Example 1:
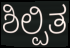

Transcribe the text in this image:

ಶಿಲ್ಪಿತ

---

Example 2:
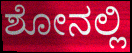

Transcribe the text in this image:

ಶೋನಲ್ಲಿ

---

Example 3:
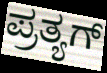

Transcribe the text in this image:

ಪ್ರತ್ಯಗ್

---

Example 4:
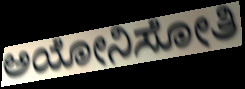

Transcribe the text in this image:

ಅಯೋನಿಸೋತಿ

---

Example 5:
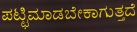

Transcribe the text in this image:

ಪಟ್ಟಿಮಾಡಬೇಕಾಗುತ್ತದೆ